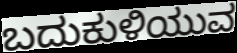
ಬದುಕುಳಿಯುವ